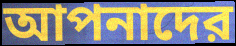
আপনাদের